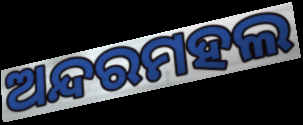
ଅନ୍ଦରମହଲ